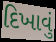
દિખાવું